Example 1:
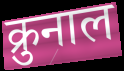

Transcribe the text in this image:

क्रुनाल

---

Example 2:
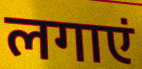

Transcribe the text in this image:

लगाएं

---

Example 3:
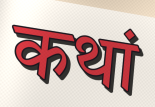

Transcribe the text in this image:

कथां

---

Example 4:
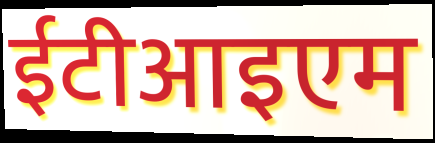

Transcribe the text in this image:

ईटीआइएम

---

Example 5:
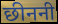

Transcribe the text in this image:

छीननी